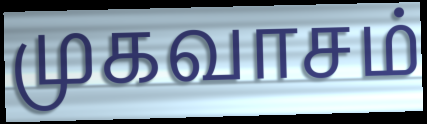
முகவாசம்